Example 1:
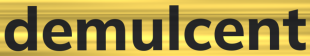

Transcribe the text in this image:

demulcent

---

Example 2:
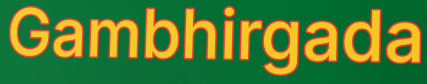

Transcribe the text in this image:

Gambhirgada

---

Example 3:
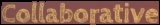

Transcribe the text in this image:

Collaborative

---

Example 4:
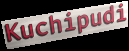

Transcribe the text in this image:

Kuchipudi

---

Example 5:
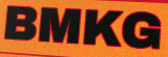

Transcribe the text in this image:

BMKG